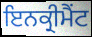
ਇਨਕ੍ਰੀਮੈਂਟ